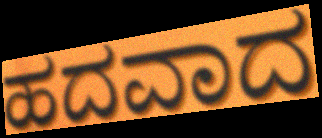
ಹದವಾದ